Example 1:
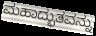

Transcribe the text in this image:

ಮಹಾದ್ಭುತವನ್ನು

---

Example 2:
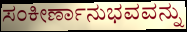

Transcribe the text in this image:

ಸಂಕೀರ್ಣಾನುಭವವನ್ನು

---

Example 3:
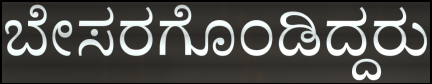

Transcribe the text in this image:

ಬೇಸರಗೊಂಡಿದ್ದರು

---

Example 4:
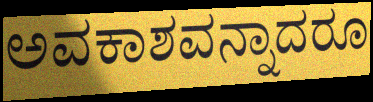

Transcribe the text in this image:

ಅವಕಾಶವನ್ನಾದರೂ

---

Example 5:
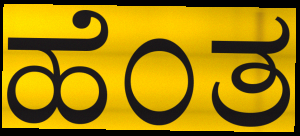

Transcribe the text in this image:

ಹೆಂತ